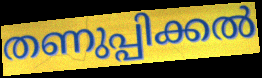
തണുപ്പിക്കൽ